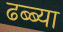
ढब्ब्या